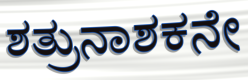
ಶತ್ರುನಾಶಕನೇ